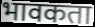
भावकता